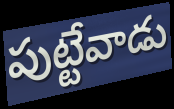
పుట్టేవాడు